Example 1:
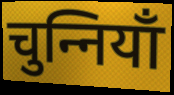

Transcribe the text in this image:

चुन्नियाँ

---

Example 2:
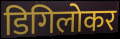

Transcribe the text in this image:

डिगिलोकर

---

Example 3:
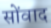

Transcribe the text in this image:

सोंवाद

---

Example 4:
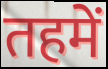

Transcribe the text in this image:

तहमें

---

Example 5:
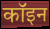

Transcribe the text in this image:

कॉइन